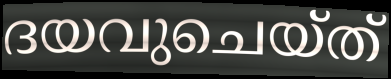
ദയവുചെയ്ത്